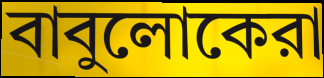
বাবুলোকেরা